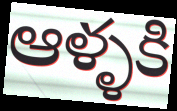
ఆళ్ళకి